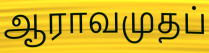
ஆராவமுதப்